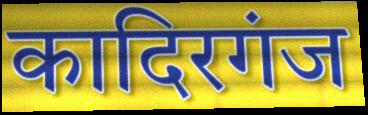
कादिरगंज